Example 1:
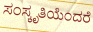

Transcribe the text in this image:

ಸಂಸ್ಕೃತಿಯೆಂದರೆ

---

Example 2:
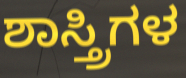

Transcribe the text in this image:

ಶಾಸ್ತ್ರಿಗಳ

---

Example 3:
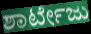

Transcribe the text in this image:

ಶಾರ್ಟೇಜು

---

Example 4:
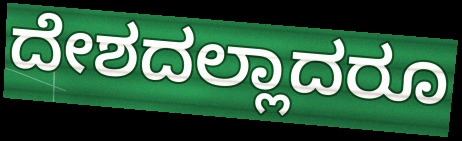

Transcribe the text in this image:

ದೇಶದಲ್ಲಾದರೂ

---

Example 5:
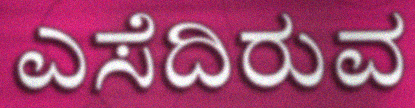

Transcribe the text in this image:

ಎಸೆದಿರುವ